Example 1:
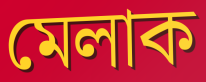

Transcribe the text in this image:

মেলাক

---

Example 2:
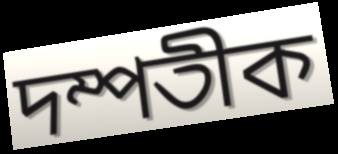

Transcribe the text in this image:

দম্পতীক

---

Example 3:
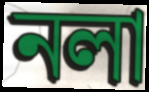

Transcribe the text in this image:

নলা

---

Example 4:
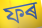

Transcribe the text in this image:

ফৰ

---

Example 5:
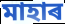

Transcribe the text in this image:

মাহাৰ